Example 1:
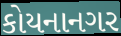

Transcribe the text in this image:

કોયનાનગર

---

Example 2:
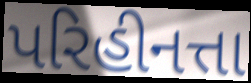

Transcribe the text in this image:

પરિહીનત્તા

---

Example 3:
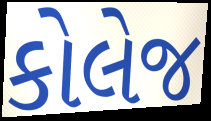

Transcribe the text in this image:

કોલેજ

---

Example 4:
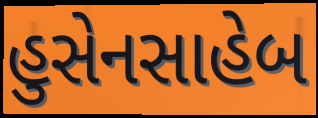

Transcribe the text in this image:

હુસેનસાહેબ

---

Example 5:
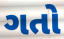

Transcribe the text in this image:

ગતો